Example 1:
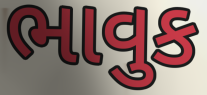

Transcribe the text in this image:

ભાવુક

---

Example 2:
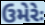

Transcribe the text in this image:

ઉમેરેઃ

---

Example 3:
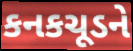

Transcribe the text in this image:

કનકચૂડને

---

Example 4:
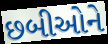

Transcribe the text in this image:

છબીઓને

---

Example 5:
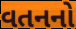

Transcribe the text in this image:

વતનનો